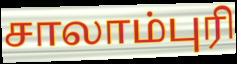
சாலாம்புரி